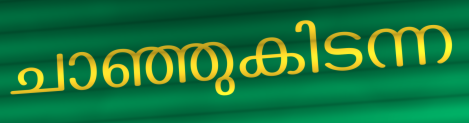
ചാഞ്ഞുകിടന്ന